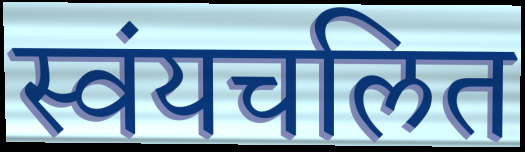
स्वंयचलित